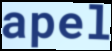
apel